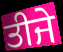
ਤੀਜੇ